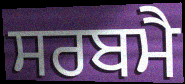
ਸਰਬਮੈ